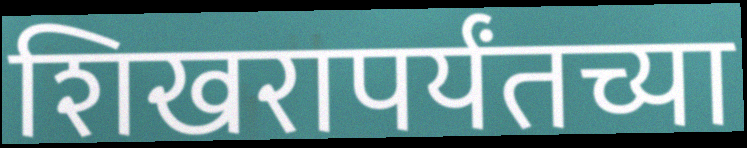
शिखरापर्यंतच्या